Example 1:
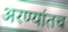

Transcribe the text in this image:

अरण्यांतच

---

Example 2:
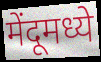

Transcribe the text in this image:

मेंदूमध्ये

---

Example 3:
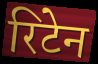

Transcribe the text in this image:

रिटेन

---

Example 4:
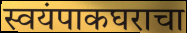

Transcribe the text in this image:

स्वयंपाकघराचा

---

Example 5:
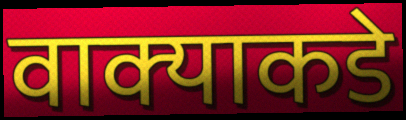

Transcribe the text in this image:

वाक्याकडे